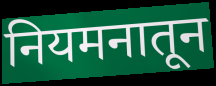
नियमनातून